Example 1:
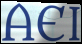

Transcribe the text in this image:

AEI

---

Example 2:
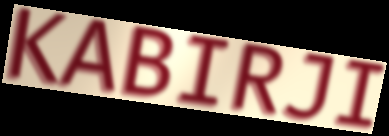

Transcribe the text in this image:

KABIRJI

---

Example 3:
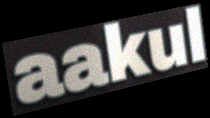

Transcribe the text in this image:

aakul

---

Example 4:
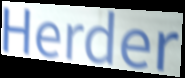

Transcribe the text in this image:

Herder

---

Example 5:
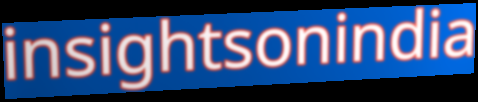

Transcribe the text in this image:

insightsonindia